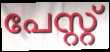
പേസ്റ്റ്